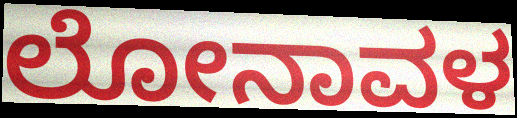
ಲೋನಾವಳ